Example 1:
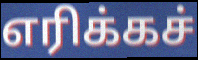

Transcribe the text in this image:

எரிக்கச்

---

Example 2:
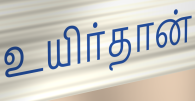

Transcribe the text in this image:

உயிர்தான்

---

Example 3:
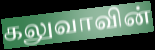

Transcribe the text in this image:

கலுவாவின்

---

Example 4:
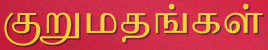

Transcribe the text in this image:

குறுமதங்கள்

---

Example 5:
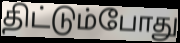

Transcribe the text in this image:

திட்டும்போது